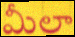
మీలా